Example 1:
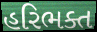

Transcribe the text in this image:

હરિભક્ત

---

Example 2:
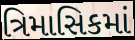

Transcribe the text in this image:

ત્રિમાસિકમાં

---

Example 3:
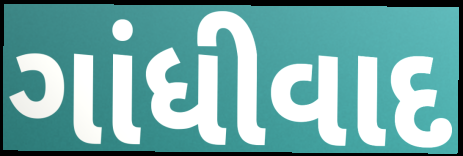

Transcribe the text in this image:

ગાંધીવાદ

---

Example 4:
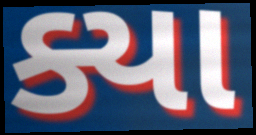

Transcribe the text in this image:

ક્યા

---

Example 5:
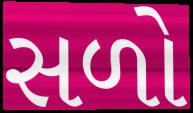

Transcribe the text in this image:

સળો